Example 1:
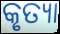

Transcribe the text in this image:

କୃତ୍ୟା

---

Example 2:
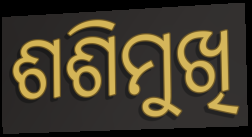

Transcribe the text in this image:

ଶଶିମୁଖି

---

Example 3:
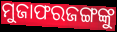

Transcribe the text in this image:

ମୁଜାଫରଜଙ୍ଗଙ୍କୁ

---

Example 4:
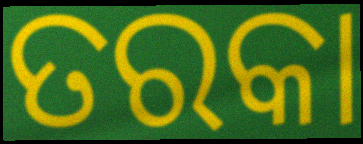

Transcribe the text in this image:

ତରକା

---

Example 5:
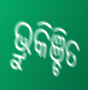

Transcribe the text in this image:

ଭ୍ରୁକିଞ୍ଚିତ